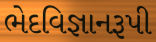
ભેદવિજ્ઞાનરૂપી